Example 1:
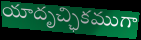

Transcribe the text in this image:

యాదృచ్ఛికముగా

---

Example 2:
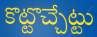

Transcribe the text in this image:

కొట్టొచ్చేట్టు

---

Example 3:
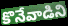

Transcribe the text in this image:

కొనేవాడిని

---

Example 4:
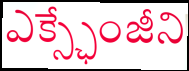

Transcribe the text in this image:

ఎక్స్ఛేంజీని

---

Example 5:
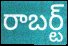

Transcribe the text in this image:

రాబర్ట్